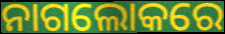
ନାଗଲୋକରେ